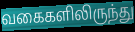
வகைகளிலிருந்து